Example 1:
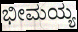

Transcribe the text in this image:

ಭೀಮಯ್ಯ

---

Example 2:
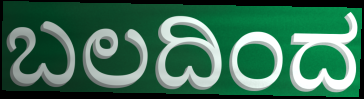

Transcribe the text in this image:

ಬಲದಿಂದ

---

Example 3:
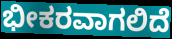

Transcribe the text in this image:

ಭೀಕರವಾಗಲಿದೆ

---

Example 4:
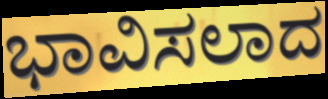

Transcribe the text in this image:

ಭಾವಿಸಲಾದ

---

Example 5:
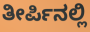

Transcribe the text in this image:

ತೀರ್ಪಿನಲ್ಲಿ